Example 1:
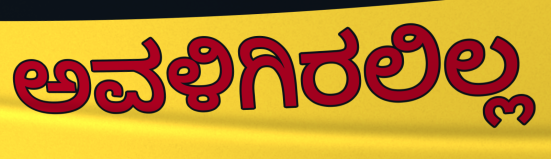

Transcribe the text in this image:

ಅವಳಿಗಿರಲಿಲ್ಲ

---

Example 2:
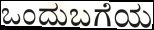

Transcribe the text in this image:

ಒಂದುಬಗೆಯ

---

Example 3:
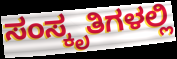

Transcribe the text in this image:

ಸಂಸ್ಕೃತಿಗಳಲ್ಲಿ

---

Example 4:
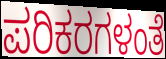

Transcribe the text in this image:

ಪರಿಕರಗಳಂತೆ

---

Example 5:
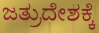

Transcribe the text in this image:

ಜತ್ರುದೇಶಕ್ಕೆ